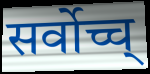
सर्वोच्च्